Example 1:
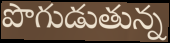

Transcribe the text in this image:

పొగుడుతున్న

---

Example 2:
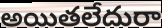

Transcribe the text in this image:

అయితలేదురా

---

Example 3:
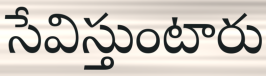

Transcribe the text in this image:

సేవిస్తుంటారు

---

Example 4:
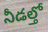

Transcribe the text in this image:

నీడల్తో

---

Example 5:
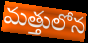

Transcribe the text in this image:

మత్తులోన